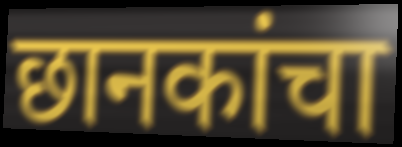
छानकांचा